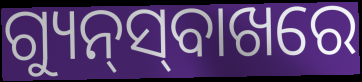
ଗ୍ୟୁନ୍‍ସ୍‍ବାଖରେ